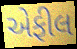
એફીલ